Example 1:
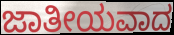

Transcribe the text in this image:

ಜಾತೀಯವಾದ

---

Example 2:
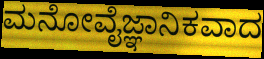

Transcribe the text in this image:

ಮನೋವೈಜ್ಞಾನಿಕವಾದ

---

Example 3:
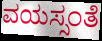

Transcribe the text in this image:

ವಯಸ್ಸಂತೆ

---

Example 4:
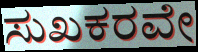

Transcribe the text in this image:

ಸುಖಕರವೇ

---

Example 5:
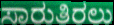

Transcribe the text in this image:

ಸಾರುತಿರಲು